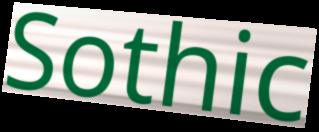
Sothic